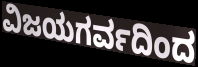
ವಿಜಯಗರ್ವದಿಂದ